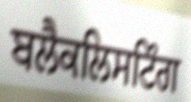
ਬਲੈਕਲਿਸਟਿੰਗ